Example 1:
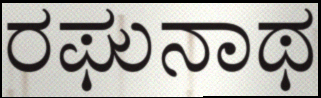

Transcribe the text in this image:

ರಘುನಾಥ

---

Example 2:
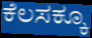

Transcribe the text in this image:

ಕೆಲಸಕ್ಕೂ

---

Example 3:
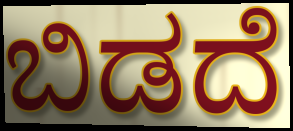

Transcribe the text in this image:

ಬಿಡದೆ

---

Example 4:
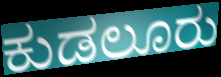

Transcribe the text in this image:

ಕುಡಲೂರು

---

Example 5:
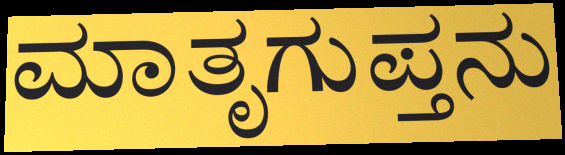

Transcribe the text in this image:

ಮಾತೃಗುಪ್ತನು